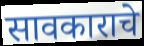
सावकाराचे